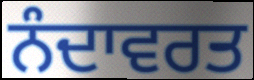
ਨੰਦਾਵਰਤ